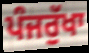
ਪੰਜਰੁੱਖਾ